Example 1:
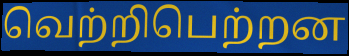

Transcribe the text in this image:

வெற்றிபெற்றன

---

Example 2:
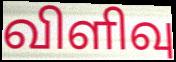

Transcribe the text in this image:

விளிவு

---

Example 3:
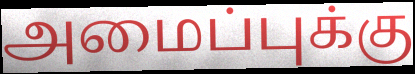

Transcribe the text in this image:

அமைப்புக்கு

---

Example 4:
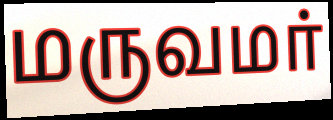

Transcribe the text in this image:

மருவமர்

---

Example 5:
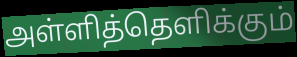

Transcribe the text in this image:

அள்ளித்தெளிக்கும்